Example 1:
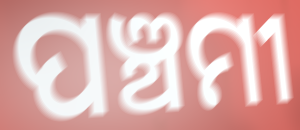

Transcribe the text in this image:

ପଞ୍ଚମୀ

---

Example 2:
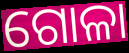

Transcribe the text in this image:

ଗୋଳା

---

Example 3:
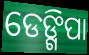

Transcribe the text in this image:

ଡେଙ୍ଗିପା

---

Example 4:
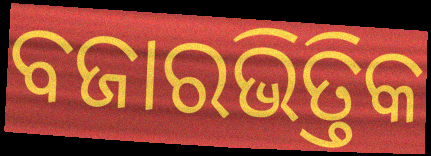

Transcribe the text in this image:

ବଜାରଭିତ୍ତିକ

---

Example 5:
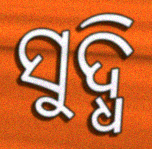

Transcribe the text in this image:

ସୁଦ୍ଧି